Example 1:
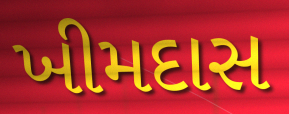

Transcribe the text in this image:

ખીમદાસ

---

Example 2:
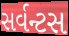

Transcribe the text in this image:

સર્વન્ટસ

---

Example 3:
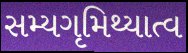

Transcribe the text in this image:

સમ્યગૃમિથ્યાત્વ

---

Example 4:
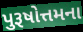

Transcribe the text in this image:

પુરૂષોત્તમના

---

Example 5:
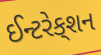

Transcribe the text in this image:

ઈન્ટરેક્‌શન